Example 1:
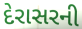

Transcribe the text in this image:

દેરાસરની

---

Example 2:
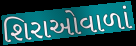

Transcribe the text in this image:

શિરાઓવાળાં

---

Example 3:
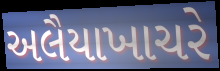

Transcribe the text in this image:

અલૈયાખાચરે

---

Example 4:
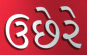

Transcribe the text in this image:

ઉછેરે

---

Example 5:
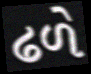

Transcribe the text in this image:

ઢળે